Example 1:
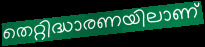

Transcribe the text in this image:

തെറ്റിദ്ധാരണയിലാണ്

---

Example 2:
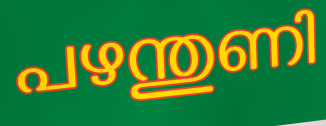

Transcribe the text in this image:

പഴന്തുണി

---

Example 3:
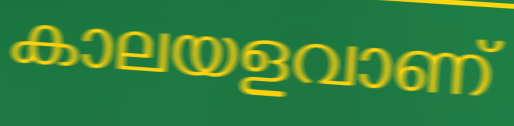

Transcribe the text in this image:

കാലയളവാണ്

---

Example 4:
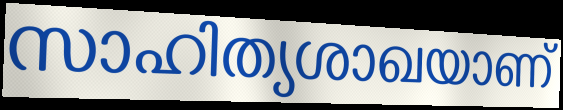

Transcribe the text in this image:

സാഹിത്യശാഖയാണ്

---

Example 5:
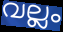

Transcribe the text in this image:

വല്ലം